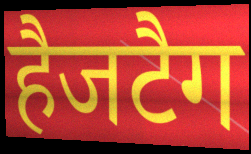
हैजटैग